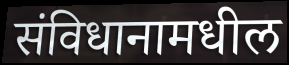
संविधानामधील